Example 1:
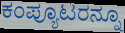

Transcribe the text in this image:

ಕಂಪ್ಯೂಟರನ್ನೂ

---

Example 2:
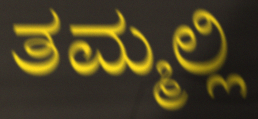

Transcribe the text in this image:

ತಮ್ಮಲ್ಲಿ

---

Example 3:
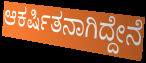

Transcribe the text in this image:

ಆಕರ್ಷಿತನಾಗಿದ್ದೇನೆ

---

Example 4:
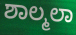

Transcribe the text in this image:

ಶಾಲ್ಮಲಾ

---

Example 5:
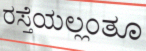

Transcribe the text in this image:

ರಸ್ತೆಯಲ್ಲಂತೂ